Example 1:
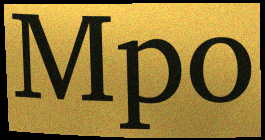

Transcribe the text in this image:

Mpo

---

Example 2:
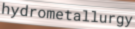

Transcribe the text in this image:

hydrometallurgy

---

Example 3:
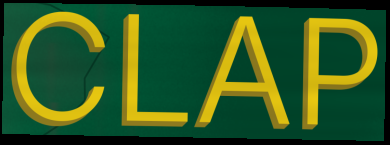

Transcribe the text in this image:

CLAP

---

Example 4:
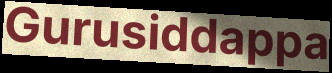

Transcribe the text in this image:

Gurusiddappa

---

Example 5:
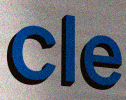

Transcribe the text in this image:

cle